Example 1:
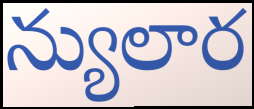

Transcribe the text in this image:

న్యులార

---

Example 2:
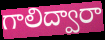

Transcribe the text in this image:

గాలిద్వారా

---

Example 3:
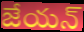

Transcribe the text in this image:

జేయన్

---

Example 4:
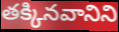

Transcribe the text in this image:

తక్కినవానిని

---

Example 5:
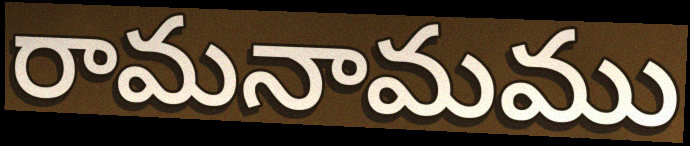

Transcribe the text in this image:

రామనామము